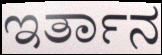
ಇರ್ತಾನ